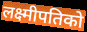
लक्ष्मीपतिको